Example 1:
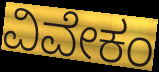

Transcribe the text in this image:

ವಿವೇಕಂ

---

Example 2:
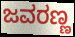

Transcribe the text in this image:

ಜವರಣ್ಣ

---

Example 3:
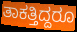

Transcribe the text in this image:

ತಾಕತ್ತಿದ್ದರೂ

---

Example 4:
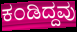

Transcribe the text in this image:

ಕಂಡಿದ್ದವು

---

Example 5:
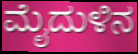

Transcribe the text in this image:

ಮೈದುಳಿನ